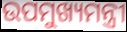
ଉପମୁଖ୍ୟମନ୍ତ୍ରୀ